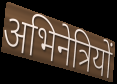
अभिनेत्रियों